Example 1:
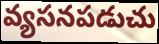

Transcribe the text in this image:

వ్యసనపడుచు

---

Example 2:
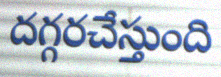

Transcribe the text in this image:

దగ్గరచేస్తుంది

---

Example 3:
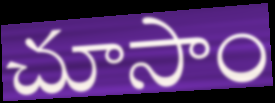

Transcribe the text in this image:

చూసాం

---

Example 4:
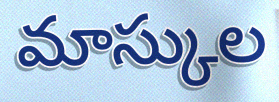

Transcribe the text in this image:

మాస్కుల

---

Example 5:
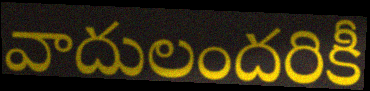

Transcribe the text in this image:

వాదులందరికీ